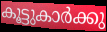
കൂട്ടുകാർക്കു